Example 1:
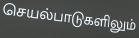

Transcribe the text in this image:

செயல்பாடுகளிலும்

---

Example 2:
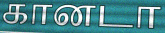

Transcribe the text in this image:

கானடா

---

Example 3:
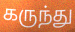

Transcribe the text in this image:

கருந்து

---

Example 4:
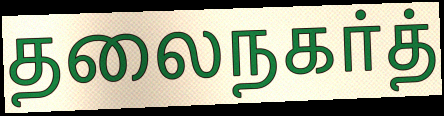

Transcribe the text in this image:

தலைநகர்த்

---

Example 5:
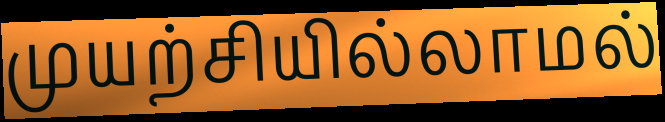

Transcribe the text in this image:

முயற்சியில்லாமல்